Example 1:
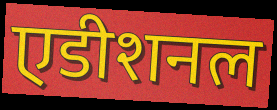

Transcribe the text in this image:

एडीशनल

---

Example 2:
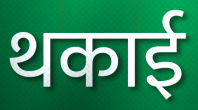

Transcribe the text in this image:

थकाई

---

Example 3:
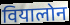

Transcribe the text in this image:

वियालोन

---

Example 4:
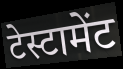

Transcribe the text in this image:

टेस्टामेंट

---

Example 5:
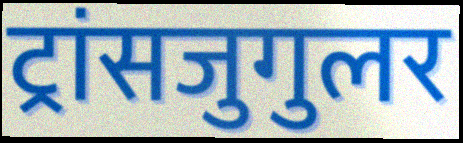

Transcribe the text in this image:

ट्रांसजुगुलर